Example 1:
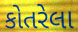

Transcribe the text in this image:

કોતરેલા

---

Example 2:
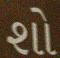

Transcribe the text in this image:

શો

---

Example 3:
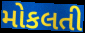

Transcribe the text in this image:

મોકલતી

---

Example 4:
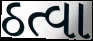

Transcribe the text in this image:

ઠત્વા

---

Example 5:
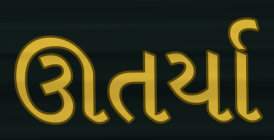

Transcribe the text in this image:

ઊતર્યા